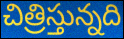
చిత్రిస్తున్నది